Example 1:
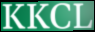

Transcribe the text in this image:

KKCL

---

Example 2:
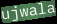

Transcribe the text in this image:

ujwala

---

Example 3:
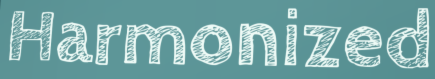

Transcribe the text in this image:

Harmonized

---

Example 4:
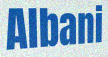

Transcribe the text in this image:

Albani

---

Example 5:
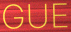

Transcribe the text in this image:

GUE